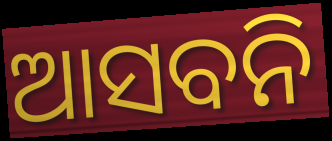
ଆସବନି